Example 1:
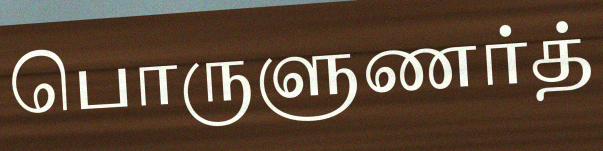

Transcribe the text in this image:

பொருளுணர்த்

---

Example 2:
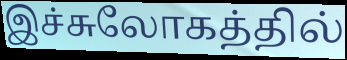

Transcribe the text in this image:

இச்சுலோகத்தில்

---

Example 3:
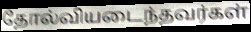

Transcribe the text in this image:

தோல்வியடைந்தவர்கள்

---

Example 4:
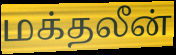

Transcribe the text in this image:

மக்தலீன்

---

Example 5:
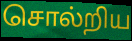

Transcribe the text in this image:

சொல்றிய